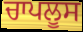
ਚਾਪਲੂਸ